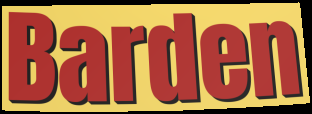
Barden